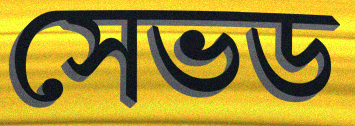
সেভড